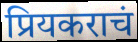
प्रियकराचं